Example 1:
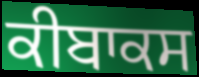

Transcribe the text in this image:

ਕੀਬਾਕਸ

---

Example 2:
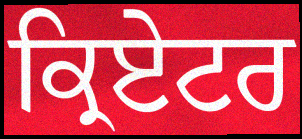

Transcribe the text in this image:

ਕ੍ਰਿਏਟਰ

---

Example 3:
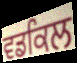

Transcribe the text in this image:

ਵਡਕਿਲ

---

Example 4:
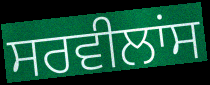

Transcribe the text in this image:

ਸਰਵੀਲਾਂਸ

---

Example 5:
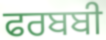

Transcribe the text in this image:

ਫਰਬਬੀ